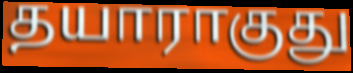
தயாராகுது